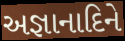
અજ્ઞાનાદિને